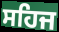
ਸਹਿਜ